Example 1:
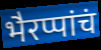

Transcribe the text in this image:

भैरप्पांचं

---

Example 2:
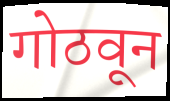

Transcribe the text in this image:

गोठवून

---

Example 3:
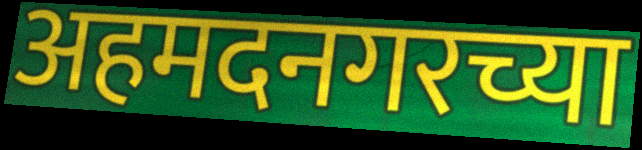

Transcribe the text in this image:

अहमदनगरच्या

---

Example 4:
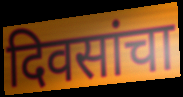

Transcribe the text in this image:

दिवसांचा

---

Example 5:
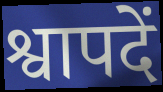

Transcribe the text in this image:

श्वापदें